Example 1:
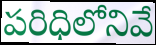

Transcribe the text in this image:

పరిధిలోనివే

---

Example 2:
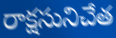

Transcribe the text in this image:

రాక్షసునిచేత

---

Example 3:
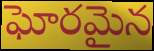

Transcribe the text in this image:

ఘోరమైన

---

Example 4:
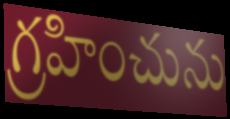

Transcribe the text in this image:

గ్రహించును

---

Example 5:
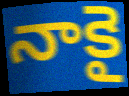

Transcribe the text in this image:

నాకై